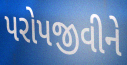
પરોપજીવીને